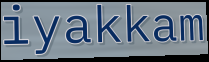
iyakkam